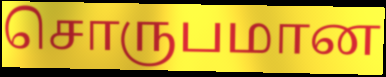
சொருபமான